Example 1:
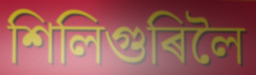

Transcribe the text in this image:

শিলিগুৰিলৈ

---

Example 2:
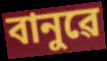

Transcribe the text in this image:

বানুৱে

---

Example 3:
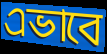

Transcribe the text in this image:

এভাবে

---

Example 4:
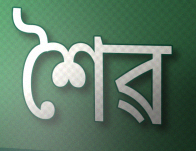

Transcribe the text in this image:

শৈৱ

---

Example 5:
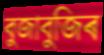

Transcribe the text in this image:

বুজাবুজিৰ